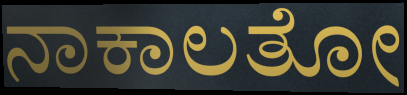
ನಾಕಾಲತೋ